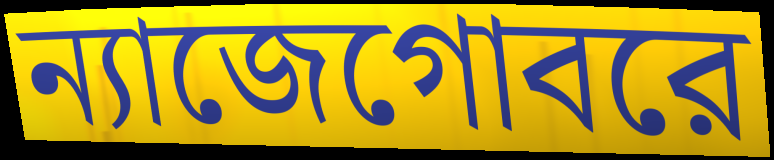
ন্যাজেগোবরে